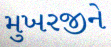
મુખરજીને